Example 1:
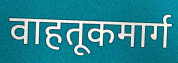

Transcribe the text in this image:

वाहतूकमार्ग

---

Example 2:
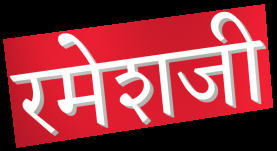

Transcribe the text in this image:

रमेशजी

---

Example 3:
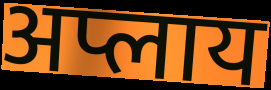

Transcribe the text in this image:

अप्लाय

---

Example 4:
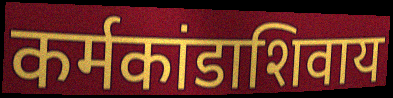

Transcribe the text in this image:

कर्मकांडाशिवाय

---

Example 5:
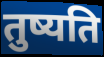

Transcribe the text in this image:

तुष्यति